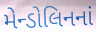
મેન્ડોલિનનાં